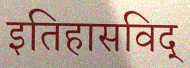
इतिहासविद्